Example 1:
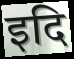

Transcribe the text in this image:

इदि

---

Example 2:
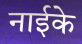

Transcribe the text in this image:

नाईके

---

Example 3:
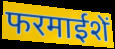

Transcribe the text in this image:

फरमाईशें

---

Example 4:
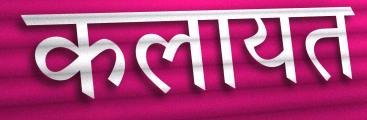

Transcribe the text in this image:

कलायत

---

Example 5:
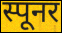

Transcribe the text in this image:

स्पूनर